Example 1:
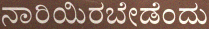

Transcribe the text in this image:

ನಾರಿಯಿರಬೇಡೆಂದು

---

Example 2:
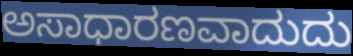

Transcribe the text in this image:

ಅಸಾಧಾರಣವಾದುದು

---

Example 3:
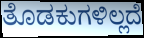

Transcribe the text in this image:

ತೊಡಕುಗಳಿಲ್ಲದೆ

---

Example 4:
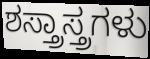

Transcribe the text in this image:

ಶಸ್ತ್ರಾಸ್ತ್ರಗಳು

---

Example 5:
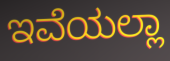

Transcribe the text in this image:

ಇವೆಯಲ್ಲಾ